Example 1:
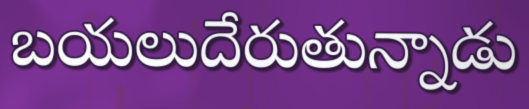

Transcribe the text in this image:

బయలుదేరుతున్నాడు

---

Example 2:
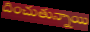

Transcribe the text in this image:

దించుతున్నాయి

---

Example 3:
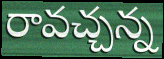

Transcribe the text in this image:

రావచ్చన్న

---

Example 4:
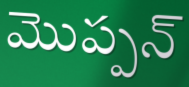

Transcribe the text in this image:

మొప్పన్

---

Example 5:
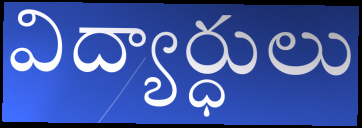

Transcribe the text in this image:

విద్యార్ధులు